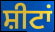
ਸ਼ੀਟਾਂ